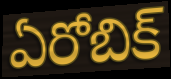
ఏరోబిక్